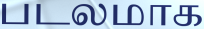
படலமாக